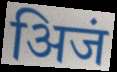
अिजं